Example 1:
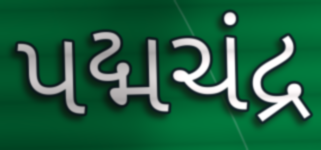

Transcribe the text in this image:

પદ્મચંદ્ર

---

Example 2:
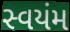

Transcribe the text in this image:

સ્વયંમ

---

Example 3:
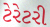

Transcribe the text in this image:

ટેરેટરી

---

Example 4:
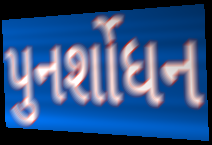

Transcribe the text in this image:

પુનર્શોધન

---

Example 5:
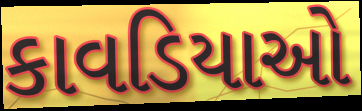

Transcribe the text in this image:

કાવડિયાઓ